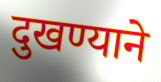
दुखण्याने